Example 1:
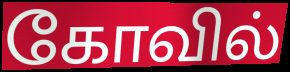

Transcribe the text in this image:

கோவில்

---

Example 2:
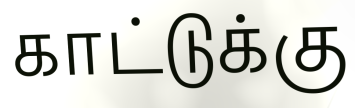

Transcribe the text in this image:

காட்டுக்கு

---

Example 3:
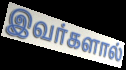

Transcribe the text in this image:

இவர்களால்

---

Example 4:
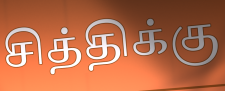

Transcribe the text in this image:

சித்திக்கு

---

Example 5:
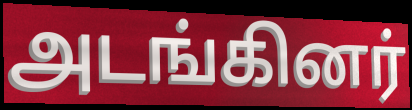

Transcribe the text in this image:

அடங்கினர்